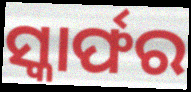
ସ୍କାର୍ଫର